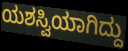
ಯಶಸ್ವಿಯಾಗಿದ್ದು